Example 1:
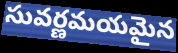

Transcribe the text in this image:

సువర్ణమయమైన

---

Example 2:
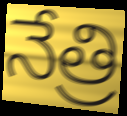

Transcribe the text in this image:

నేత్రి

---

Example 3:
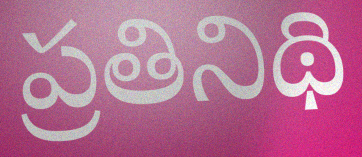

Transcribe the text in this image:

ప్రతినిథి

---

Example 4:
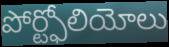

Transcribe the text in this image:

పోర్ట్ఫోలియోలు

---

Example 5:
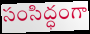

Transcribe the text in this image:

సంసిద్ధంగా